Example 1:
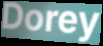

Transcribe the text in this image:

Dorey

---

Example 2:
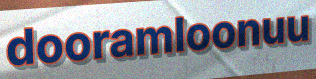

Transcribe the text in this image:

dooramloonuu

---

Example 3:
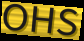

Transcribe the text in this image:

OHS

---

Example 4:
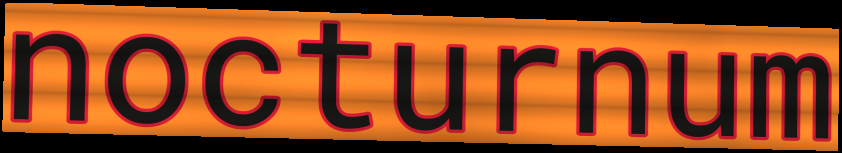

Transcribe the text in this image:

nocturnum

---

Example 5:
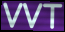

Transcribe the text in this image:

VVT